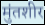
मुंतशीर